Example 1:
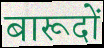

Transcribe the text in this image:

बारूदों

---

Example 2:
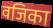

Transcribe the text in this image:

वजिका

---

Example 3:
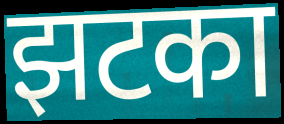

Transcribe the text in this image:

झटका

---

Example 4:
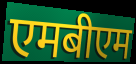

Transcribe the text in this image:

एमबीएम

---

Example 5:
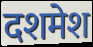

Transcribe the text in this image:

दशमेश